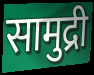
सामुद्री